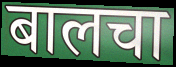
बालचा